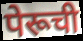
पेरूची